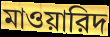
মাওয়ারিদ